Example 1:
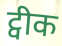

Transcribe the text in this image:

ट्वीक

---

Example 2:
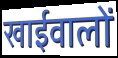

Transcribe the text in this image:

खाईवालों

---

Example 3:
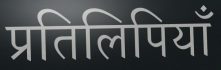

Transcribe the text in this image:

प्रतिलिपियाँ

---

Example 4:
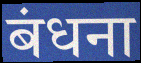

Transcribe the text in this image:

बंधना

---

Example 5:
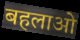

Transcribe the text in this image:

बहलाओ